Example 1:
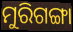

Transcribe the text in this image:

ମୁରିଗଙ୍ଗା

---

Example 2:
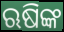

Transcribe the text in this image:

ଋଷିଙ୍କ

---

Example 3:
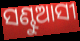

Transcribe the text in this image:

ସଣ୍ଢୁଆସୀ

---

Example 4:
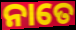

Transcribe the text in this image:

ନାତେ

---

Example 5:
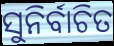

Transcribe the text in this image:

ସୁନିର୍ବାଚିତ